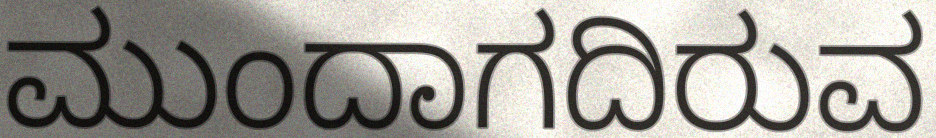
ಮುಂದಾಗದಿರುವ